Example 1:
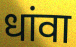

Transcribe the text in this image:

धांवा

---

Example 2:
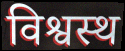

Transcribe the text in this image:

विश्वस्थ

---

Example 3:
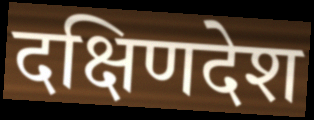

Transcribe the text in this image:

दक्षिणदेश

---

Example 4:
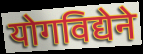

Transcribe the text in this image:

योगविद्येने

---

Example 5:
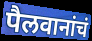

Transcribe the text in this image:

पैलवानांचं